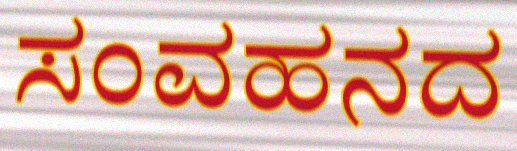
ಸಂವಹನದ